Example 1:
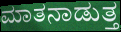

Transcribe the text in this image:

ಮಾತನಾಡುತ್ತ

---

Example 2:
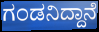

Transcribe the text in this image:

ಗಂಡನಿದ್ದಾನೆ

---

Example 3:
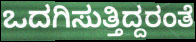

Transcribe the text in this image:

ಒದಗಿಸುತ್ತಿದ್ದರಂತೆ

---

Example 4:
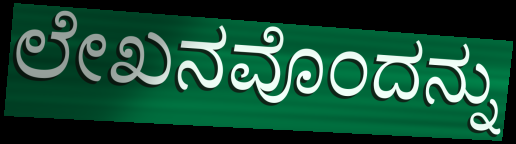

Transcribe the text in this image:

ಲೇಖನವೊಂದನ್ನು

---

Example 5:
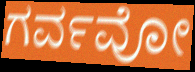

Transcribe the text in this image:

ಗರ್ವವೋ